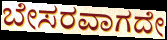
ಬೇಸರವಾಗದೇ